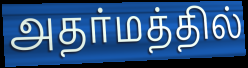
அதர்மத்தில்